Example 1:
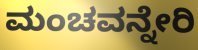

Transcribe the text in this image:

ಮಂಚವನ್ನೇರಿ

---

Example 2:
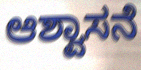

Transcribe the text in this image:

ಆಶ್ವಾಸನೆ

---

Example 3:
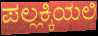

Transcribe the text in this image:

ಪಲ್ಲಕ್ಕಿಯಲಿ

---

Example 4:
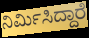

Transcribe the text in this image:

ನಿರ್ಮಿಸಿದ್ದಾರೆ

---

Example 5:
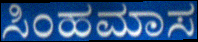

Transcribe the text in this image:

ಸಿಂಹಮಾಸ